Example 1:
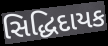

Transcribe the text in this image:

સિદ્ધિદાયક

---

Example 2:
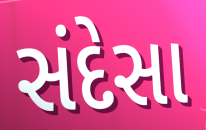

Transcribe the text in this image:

સંદેસા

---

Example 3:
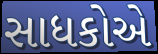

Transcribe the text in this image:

સાધકોએ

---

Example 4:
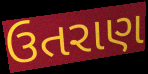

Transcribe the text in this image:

ઉતરાણ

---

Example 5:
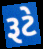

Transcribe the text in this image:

રૂટે